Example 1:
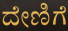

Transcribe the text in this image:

ದೇಣಿಗೆ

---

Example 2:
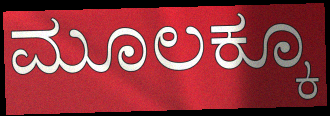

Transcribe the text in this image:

ಮೂಲಕ್ಕೂ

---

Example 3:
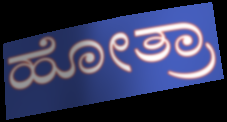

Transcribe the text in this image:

ಹೋತ್ರಾ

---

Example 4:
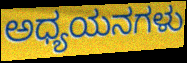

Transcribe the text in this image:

ಅಧ್ಯಯನಗಳು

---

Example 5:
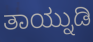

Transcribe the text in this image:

ತಾಯ್ನುಡಿ